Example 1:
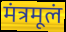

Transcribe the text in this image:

मंत्रमूलं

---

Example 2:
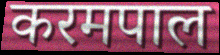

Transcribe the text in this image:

करमपाल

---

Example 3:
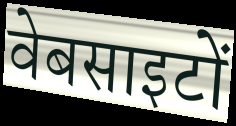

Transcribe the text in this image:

वेबसाइटों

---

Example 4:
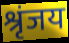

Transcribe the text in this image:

श्रृंजय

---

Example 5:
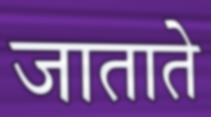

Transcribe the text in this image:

जाताते